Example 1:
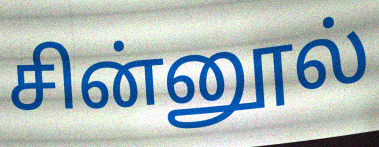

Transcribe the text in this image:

சின்னூல்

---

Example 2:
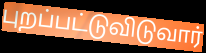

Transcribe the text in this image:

புறப்பட்டுவிடுவார்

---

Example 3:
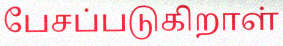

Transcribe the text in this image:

பேசப்படுகிறாள்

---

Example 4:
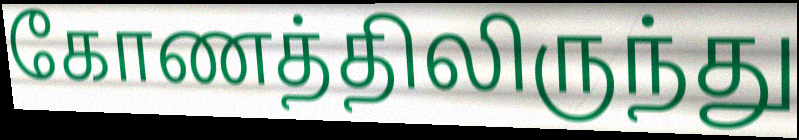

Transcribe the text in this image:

கோணத்திலிருந்து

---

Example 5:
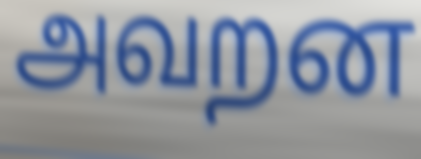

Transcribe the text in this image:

அவறன